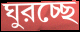
ঘুরচ্ছে